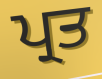
ਪ੍ਰਤ